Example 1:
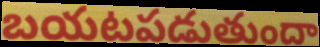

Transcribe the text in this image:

బయటపడుతుందా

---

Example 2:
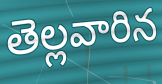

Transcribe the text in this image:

తెల్లవారిన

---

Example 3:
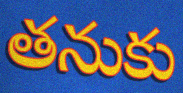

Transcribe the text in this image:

తనుకు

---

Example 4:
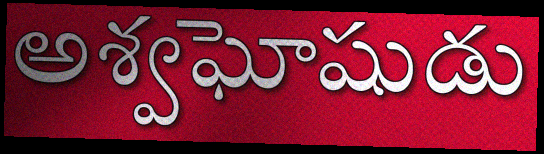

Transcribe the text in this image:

అశ్వఘోషుడు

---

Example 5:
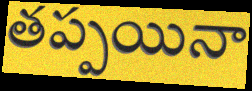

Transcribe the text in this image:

తప్పయినా